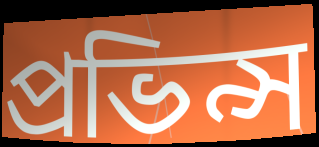
প্ৰভিন্স